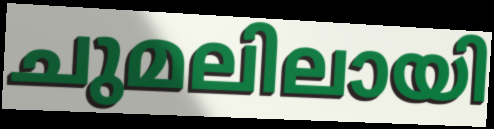
ചുമലിലായി